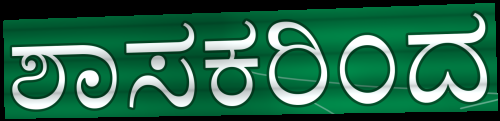
ಶಾಸಕರಿಂದ